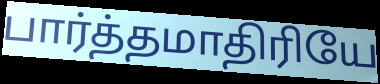
பார்த்தமாதிரியே